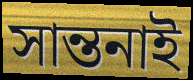
সান্তনাই